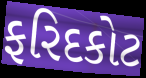
ફરિદકોટ